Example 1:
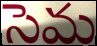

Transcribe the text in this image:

సెమ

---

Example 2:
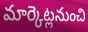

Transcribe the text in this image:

మార్కెట్లనుంచి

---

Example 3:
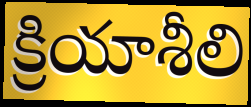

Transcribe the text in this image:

క్రియాశీలి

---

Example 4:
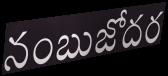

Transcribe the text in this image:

నంబుజోదర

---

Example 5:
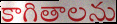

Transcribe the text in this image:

కాగితాలను